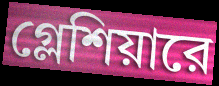
গ্লেশিয়ারে